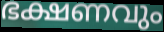
ഭക്ഷണവും